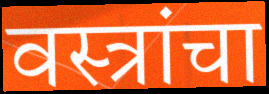
वस्त्रांचा